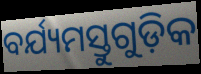
ବର୍ଯ୍ୟମସ୍ତୁଗୁଡ଼ିକ